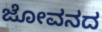
ಜೋವನದ